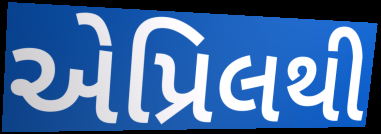
એપ્રિલથી